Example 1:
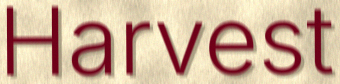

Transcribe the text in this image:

Harvest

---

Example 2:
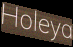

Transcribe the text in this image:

Holeya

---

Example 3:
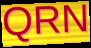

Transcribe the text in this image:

QRN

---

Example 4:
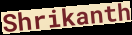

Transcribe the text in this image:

Shrikanth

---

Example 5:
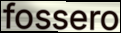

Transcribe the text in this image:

fossero